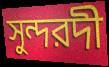
সুন্দরদী